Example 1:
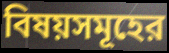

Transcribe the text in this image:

বিষয়সমূহের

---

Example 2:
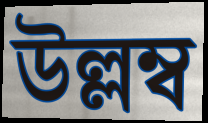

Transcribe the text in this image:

উল্লম্ব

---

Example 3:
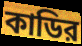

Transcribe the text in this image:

কাডির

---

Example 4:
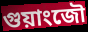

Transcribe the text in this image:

গুয়াংজৌ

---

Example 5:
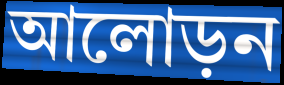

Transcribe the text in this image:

আলোড়ন